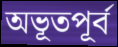
অভূতপূৰ্ব